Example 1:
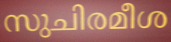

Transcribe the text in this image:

സുചിരമീശ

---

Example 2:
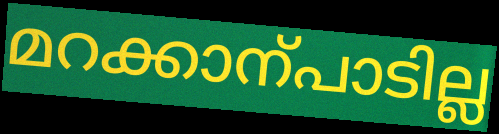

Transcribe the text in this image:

മറക്കാന്പാടില്ല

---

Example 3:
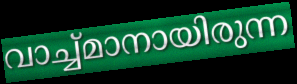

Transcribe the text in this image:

വാച്ച്മാനായിരുന്ന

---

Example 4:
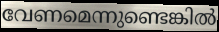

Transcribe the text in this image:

വേണമെന്നുണ്ടെങ്കിൽ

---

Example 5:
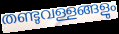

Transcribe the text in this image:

തണ്ടുവള്ളങ്ങളും